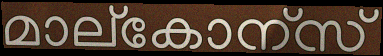
മാല്കോന്സ്